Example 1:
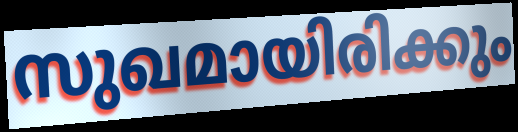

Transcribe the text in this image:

സുഖമായിരിക്കും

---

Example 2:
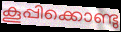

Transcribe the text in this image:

കൂപ്പിക്കൊണ്ടു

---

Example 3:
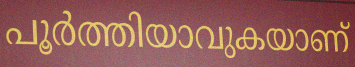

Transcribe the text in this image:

പൂർത്തിയാവുകയാണ്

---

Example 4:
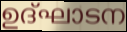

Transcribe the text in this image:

ഉദ്ഘാടന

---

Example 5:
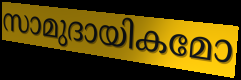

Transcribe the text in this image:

സാമുദായികമോ